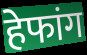
हेफांग